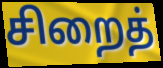
சிறைத்